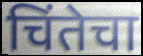
चिंतेचा